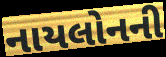
નાયલોનની